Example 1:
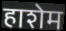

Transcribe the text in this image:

हाशेम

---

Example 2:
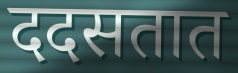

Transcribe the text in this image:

ददसतात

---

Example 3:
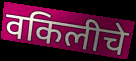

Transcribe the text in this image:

वकिलीचे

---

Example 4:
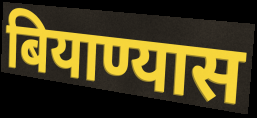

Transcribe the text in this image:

बियाण्यास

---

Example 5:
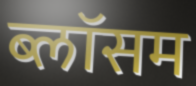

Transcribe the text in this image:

ब्लॉसम